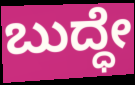
ಬುದ್ಧೇ